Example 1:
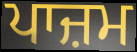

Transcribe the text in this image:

ਪਾਜ਼ਮ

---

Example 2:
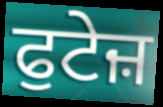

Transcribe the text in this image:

ਫੁਟੇਜ਼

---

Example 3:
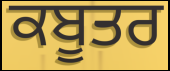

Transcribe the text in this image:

ਕਬੂਤਰ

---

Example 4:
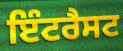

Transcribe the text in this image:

ਇੰਟਰੈਸਟ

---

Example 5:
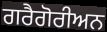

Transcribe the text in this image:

ਗਰੈਗੋਰੀਅਨ